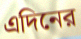
এদিনের